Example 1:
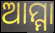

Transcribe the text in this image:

ଆମ୍ମା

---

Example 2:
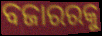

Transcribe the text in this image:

ବଜାରରକୁ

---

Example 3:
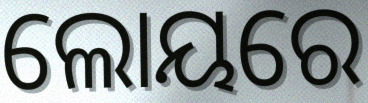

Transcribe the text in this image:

ଲୋୟରେ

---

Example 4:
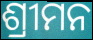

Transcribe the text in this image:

ଶ୍ରୀମନ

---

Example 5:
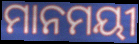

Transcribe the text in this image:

ମାନମୟୀ